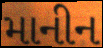
માનીન